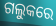
ଗଲୁକରେ